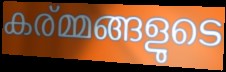
കര്മ്മങ്ങളുടെ